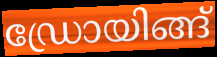
ഡ്രോയിങ്ങ്